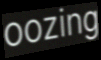
oozing